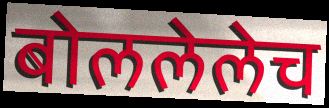
बोललेलेच